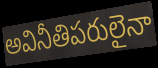
అవినీతిపరులైనా